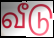
வீடு